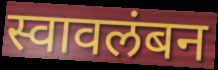
स्वावलंबन